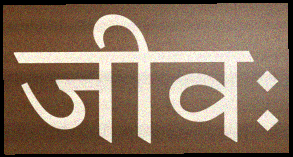
जीवः